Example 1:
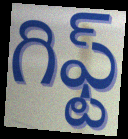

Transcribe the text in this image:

గిఫ్ట్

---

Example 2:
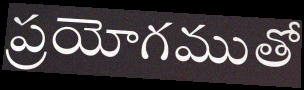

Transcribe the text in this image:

ప్రయోగముతో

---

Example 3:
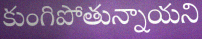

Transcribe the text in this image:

కుంగిపోతున్నాయని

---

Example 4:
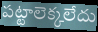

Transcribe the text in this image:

పట్టాలెక్కలేదు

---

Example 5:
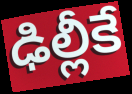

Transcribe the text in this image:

ఢిల్లీకే